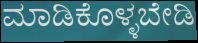
ಮಾಡಿಕೊಳ್ಳಬೇಡಿ